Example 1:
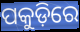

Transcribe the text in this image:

ପକୁଡ଼ିରେ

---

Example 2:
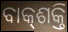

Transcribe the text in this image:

ବାକ୍‍ଶକ୍ତି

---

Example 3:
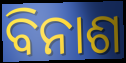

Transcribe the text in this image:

ବିନାଶ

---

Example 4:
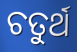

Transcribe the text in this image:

ଚତୁର୍ଥ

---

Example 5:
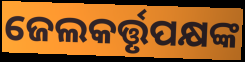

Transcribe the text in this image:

ଜେଲକର୍ତ୍ତୃପକ୍ଷଙ୍କ